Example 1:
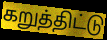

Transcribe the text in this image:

கறுத்திட்டு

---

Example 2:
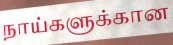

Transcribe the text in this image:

நாய்களுக்கான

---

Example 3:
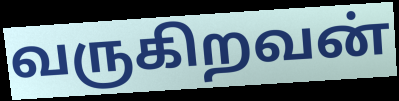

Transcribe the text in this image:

வருகிறவன்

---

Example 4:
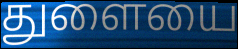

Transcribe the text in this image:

துளையை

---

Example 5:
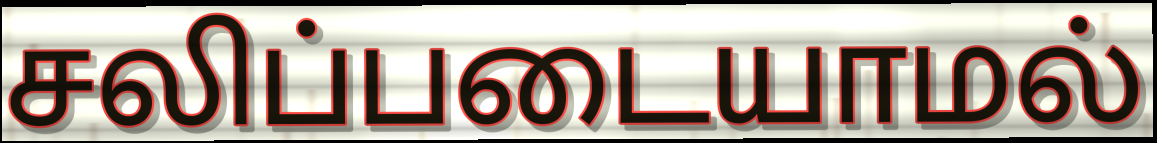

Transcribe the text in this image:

சலிப்படையாமல்